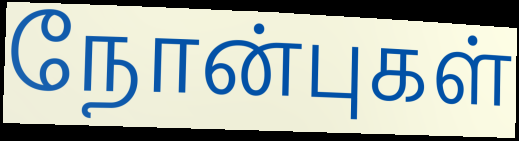
நோன்புகள்